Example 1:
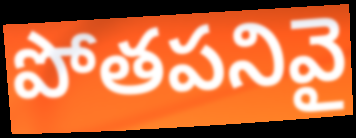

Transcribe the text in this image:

పోతపనివై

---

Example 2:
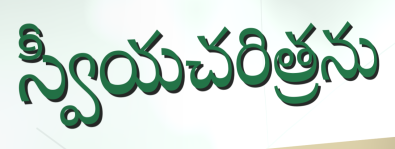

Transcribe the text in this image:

స్వీయచరిత్రను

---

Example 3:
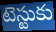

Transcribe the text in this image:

టెస్టుకు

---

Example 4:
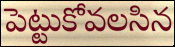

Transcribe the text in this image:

పెట్టుకోవలసిన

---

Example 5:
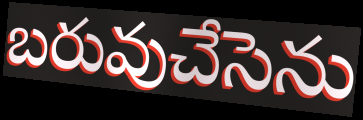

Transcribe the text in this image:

బరువుచేసెను